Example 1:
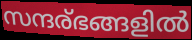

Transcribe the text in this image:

സന്ദര്ഭങ്ങളിൽ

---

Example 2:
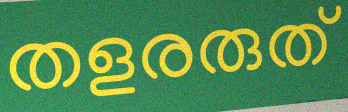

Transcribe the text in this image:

തളരരുത്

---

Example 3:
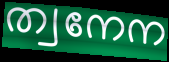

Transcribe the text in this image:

ത്വനേന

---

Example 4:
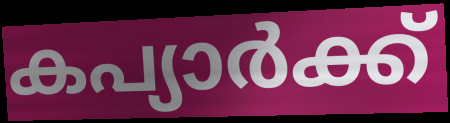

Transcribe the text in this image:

കപ്യാർക്ക്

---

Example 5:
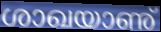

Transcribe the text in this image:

ശാഖയാണു്